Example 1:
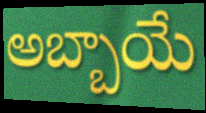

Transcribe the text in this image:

అబ్బాయే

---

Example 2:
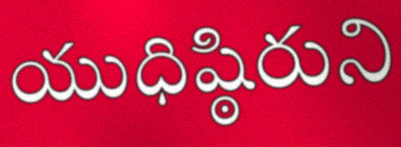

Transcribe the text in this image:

యుధిష్ఠిరుని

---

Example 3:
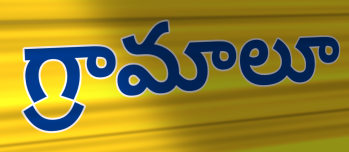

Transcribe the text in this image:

గ్రామాలూ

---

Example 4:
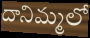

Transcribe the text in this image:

దానిమ్మలో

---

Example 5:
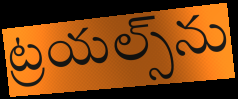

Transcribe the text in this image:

ట్రయల్స్‌ను